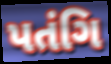
પતંગિ